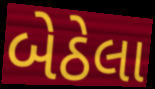
બેઠેલા